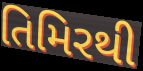
તિમિરથી